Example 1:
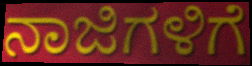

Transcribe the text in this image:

ನಾಜಿಗಳಿಗೆ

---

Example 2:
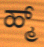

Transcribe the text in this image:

ಹ್ಮ್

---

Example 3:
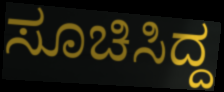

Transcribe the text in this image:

ಸೂಚಿಸಿದ್ದ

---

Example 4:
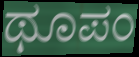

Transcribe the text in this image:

ಥೂಪಂ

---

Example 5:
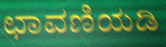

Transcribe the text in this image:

ಛಾವಣಿಯಡಿ